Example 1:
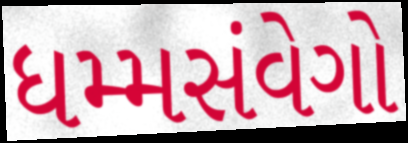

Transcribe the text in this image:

ધમ્મસંવેગો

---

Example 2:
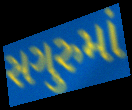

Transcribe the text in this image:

સગુરુમાં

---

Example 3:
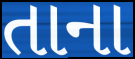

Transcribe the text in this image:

તાના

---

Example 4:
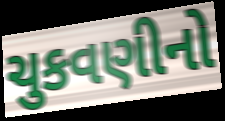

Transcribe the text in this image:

ચુકવણીનો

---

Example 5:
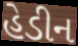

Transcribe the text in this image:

હેડીન